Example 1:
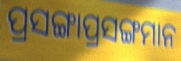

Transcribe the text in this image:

ପ୍ରସଙ୍ଗାପ୍ରସଙ୍ଗମାନ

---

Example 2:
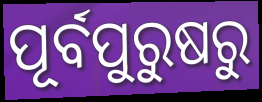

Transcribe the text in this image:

ପୂର୍ବପୁରୁଷରୁ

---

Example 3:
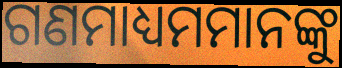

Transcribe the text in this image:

ଗଣମାଧ୍ୟମମାନଙ୍କୁ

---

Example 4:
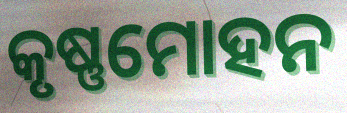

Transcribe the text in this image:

କୃଷ୍ଣମୋହନ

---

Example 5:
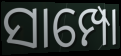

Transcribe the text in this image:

ସାମ୍ପୋ